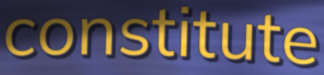
constitute